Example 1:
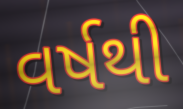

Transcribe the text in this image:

વર્ષથી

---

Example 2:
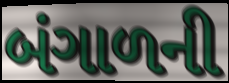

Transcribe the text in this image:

બંગાળની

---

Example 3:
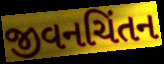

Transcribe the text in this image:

જીવનચિંતન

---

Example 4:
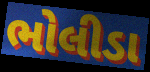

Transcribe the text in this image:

ભોલીડા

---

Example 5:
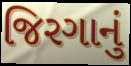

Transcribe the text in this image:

જિરગાનું